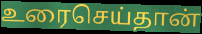
உரைசெய்தான்